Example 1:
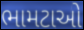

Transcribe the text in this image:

ભામટાઓ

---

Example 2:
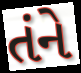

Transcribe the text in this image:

તંને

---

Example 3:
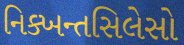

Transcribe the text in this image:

નિક્ખન્તસિલેસો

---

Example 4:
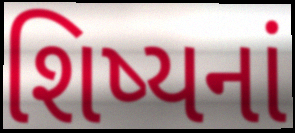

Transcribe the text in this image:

શિષ્યનાં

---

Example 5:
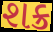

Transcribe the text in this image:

શક્ર